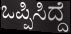
ಒಪ್ಪಿಸಿದ್ದೆ